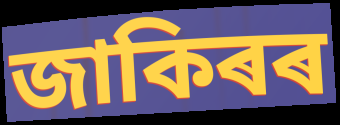
জাকিৰৰ